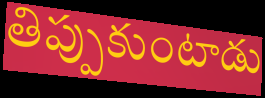
తిప్పుకుంటాడు